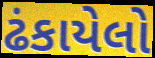
ઢંકાયેલો